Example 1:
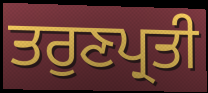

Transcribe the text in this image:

ਤਰੁਣਪ੍ਰਤੀ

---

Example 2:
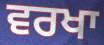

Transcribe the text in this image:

ਵਰਖਾ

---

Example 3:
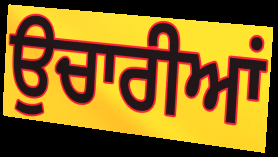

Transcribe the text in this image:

ਉਚਾਰੀਆਂ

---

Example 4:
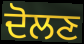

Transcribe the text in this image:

ਦੋਲਣ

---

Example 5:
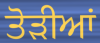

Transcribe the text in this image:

ਤੋਡ਼ੀਆਂ